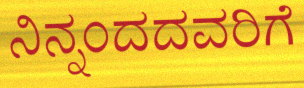
ನಿನ್ನಂದದವರಿಗೆ